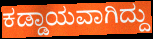
ಕಡ್ಡಾಯವಾಗಿದ್ದು